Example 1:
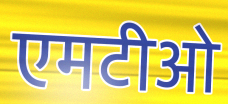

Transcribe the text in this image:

एमटीओ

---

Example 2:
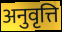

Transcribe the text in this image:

अनुवृत्ति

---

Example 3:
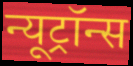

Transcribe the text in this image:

न्यूट्रॉन्स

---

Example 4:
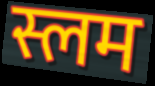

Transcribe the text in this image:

स्लम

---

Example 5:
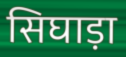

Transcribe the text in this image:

सिघाड़ा